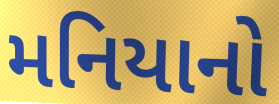
મનિયાનો